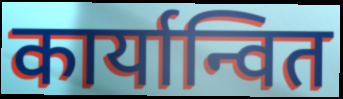
कार्यान्वित